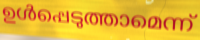
ഉൾപ്പെടുത്താമെന്ന്